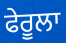
ਫੇਰੂਲਾ